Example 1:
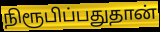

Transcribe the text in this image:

நிரூபிப்பதுதான்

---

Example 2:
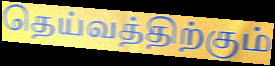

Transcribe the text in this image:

தெய்வத்திற்கும்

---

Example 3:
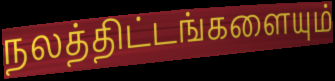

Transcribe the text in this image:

நலத்திட்டங்களையும்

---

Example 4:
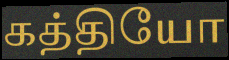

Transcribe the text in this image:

கத்தியோ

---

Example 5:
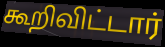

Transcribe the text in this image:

கூறிவிட்டார்